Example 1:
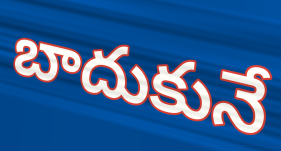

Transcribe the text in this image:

బాదుకునే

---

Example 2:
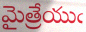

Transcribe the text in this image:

మైత్రేయుఁ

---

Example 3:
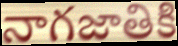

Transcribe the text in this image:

నాగజాతికి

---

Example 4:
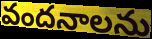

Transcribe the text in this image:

వందనాలను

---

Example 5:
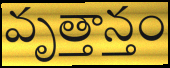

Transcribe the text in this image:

వృత్తాన్తం